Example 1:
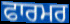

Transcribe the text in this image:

ਫਾਰਮਰ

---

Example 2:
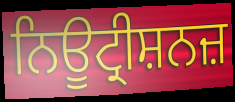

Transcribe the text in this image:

ਨਿਊਟ੍ਰੀਸ਼ਨਜ਼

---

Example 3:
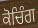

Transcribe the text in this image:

ਕੋਚਿੰਗ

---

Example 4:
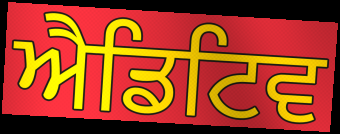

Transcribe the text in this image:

ਐਡਿਟਿਵ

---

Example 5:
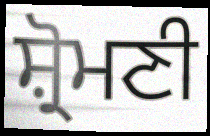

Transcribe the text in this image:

ਸ਼੍ਰੋਮਣੀ